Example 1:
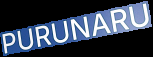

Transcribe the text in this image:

PURUNARU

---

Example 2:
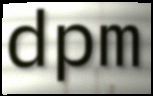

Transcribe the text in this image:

dpm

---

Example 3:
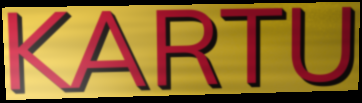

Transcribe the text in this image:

KARTU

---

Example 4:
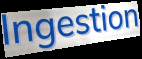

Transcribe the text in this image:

Ingestion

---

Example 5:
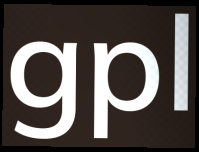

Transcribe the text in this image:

gpl